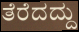
ತೆರೆದದ್ದು